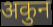
अकुन